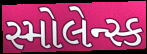
સ્મોલેન્સ્ક